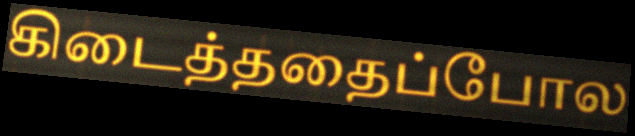
கிடைத்ததைப்போல